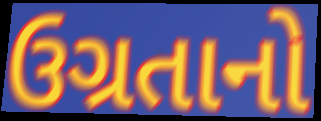
ઉગ્રતાનો